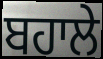
ਬਹਾਲੇ